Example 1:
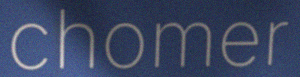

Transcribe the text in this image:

chomer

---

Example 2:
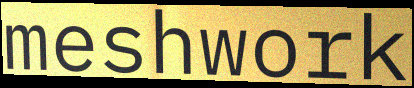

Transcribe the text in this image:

meshwork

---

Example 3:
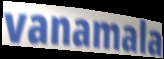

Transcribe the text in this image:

vanamala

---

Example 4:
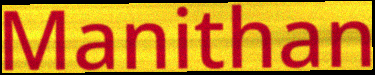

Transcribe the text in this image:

Manithan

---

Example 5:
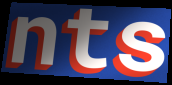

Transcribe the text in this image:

nts